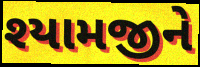
શ્યામજીને